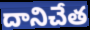
దానిచేత